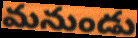
మనుండు